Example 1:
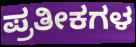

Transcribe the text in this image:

ಪ್ರತೀಕಗಳ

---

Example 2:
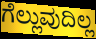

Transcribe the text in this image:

ಗೆಲ್ಲುವುದಿಲ್ಲ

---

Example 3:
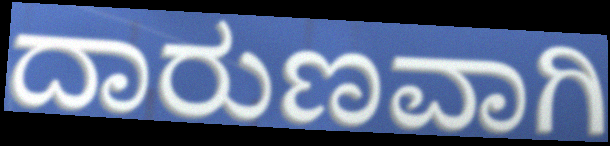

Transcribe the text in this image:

ದಾರುಣವಾಗಿ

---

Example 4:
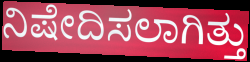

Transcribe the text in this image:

ನಿಷೇದಿಸಲಾಗಿತ್ತು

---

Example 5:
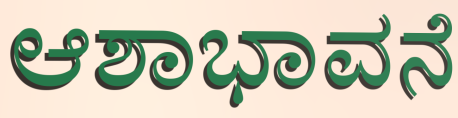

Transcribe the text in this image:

ಆಶಾಭಾವನೆ